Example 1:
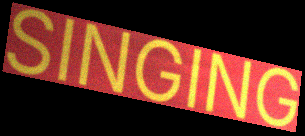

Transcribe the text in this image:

SINGING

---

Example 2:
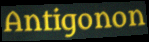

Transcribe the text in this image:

Antigonon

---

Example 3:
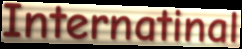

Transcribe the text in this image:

Internatinal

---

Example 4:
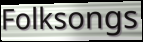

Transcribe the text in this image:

Folksongs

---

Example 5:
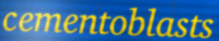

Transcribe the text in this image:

cementoblasts